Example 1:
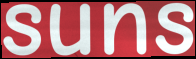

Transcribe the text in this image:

suns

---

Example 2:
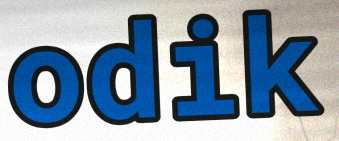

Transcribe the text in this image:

odik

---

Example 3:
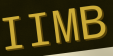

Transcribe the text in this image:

IIMB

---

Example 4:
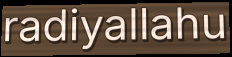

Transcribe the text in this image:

radiyallahu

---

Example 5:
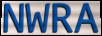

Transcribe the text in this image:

NWRA